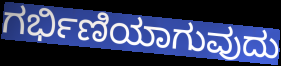
ಗರ್ಭಿಣಿಯಾಗುವುದು